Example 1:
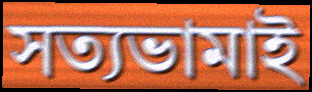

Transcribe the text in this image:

সত্যভামাই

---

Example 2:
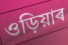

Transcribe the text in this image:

ওড়িয়াৰ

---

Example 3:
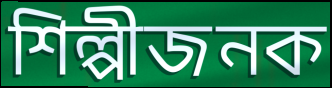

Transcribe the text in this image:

শিল্পীজনক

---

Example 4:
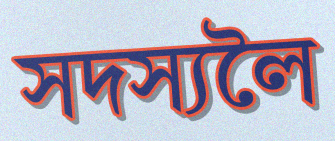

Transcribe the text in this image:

সদস্যলৈ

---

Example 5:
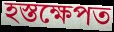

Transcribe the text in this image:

হস্তক্ষেপত